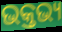
ଭକ୍ତଭ୍ୟ